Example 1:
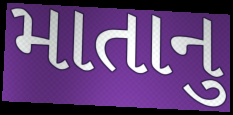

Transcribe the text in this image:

માતાનુ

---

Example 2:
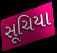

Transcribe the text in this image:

સૂચિયા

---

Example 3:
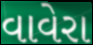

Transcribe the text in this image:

વાવેરા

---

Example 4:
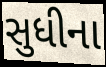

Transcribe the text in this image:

સુધીના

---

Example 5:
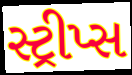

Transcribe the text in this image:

સ્ટ્રીપ્સ